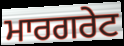
ਮਾਰਗਰੇਟ